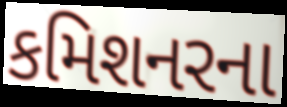
કમિશનરના